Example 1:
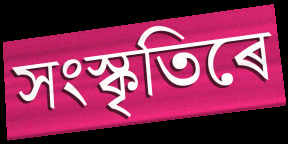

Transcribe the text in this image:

সংস্কৃতিৰে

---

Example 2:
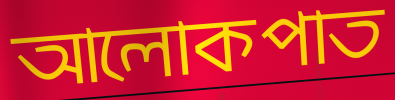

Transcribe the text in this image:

আলোকপাত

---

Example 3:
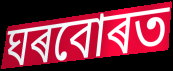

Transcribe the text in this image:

ঘৰবোৰত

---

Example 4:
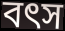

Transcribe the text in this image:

বৎস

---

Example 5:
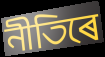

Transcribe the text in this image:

নীতিৰে